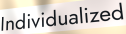
Individualized